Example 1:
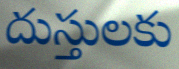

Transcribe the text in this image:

దుస్తులకు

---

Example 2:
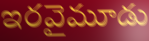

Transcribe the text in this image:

ఇరవైమూడు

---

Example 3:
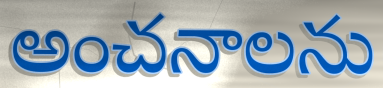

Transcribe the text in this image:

అంచనాలను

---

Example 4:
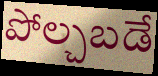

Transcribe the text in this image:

పోల్చబడే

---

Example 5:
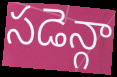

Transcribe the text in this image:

సడెన్గా